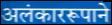
अलंकाररूपाने